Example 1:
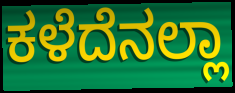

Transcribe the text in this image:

ಕಳೆದೆನಲ್ಲಾ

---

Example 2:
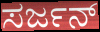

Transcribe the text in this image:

ಸರ್ಜನ್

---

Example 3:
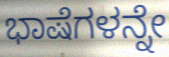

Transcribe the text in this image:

ಭಾಷೆಗಳನ್ನೇ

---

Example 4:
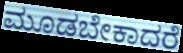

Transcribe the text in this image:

ಮೂಡಬೇಕಾದರೆ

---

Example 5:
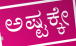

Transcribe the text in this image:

ಅಷ್ಟಕ್ಕೇ